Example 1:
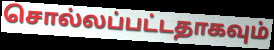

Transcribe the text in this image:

சொல்லப்பட்டதாகவும்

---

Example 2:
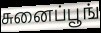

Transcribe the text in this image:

சுனைப்பூங்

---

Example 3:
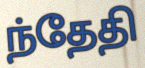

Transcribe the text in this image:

ந்தேதி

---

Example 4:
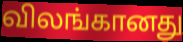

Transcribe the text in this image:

விலங்கானது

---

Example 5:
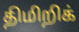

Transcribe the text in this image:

திமிறிக்